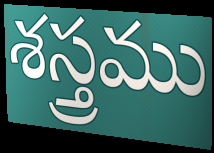
శస్త్రము